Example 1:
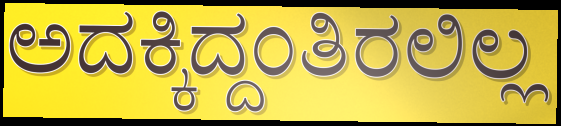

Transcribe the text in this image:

ಅದಕ್ಕಿದ್ದಂತಿರಲಿಲ್ಲ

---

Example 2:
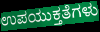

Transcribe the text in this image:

ಉಪಯುಕ್ತತೆಗಳು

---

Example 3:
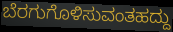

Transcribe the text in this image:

ಬೆರಗುಗೊಳಿಸುವಂತಹದ್ದು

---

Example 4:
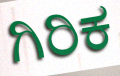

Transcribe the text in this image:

ಗಿರಿಕ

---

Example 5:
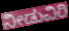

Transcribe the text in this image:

ನೀಡುವಿರಿ